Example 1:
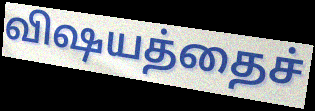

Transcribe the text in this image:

விஷயத்தைச்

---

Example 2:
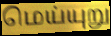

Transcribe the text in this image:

மெய்யுறு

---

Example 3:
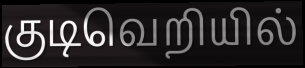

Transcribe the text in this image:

குடிவெறியில்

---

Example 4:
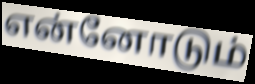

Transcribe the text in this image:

என்னோடும்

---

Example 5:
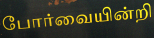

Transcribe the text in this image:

போர்வையின்றி